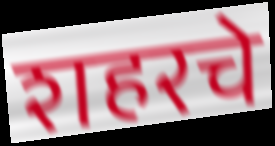
शहरचे